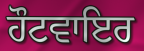
ਹੌਟਵਾਇਰ